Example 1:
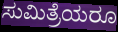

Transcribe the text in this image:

ಸುಮಿತ್ರೆಯರೂ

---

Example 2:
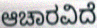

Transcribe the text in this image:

ಆಚಾರವಿದೆ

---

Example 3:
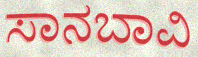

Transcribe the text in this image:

ಸಾನಬಾವಿ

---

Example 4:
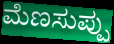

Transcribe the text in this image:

ಮೆಣಸುಪ್ಪು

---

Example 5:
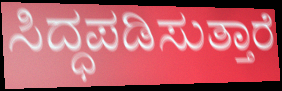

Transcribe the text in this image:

ಸಿದ್ಧಪಡಿಸುತ್ತಾರೆ